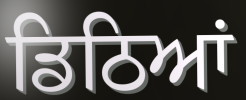
ਡਿਠਿਆਂ